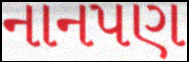
નાનપણ